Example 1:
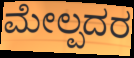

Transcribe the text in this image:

ಮೇಲ್ಪದರ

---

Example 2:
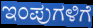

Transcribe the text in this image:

ಇಂಪುಗಳಿಗೆ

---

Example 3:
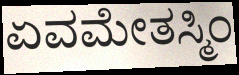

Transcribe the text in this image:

ಏವಮೇತಸ್ಮಿಂ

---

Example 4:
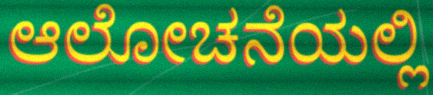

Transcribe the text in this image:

ಆಲೋಚನೆಯಲ್ಲಿ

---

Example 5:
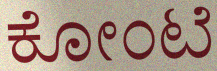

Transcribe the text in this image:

ಕೋಂಟೆ